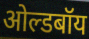
ओल्डबॉय